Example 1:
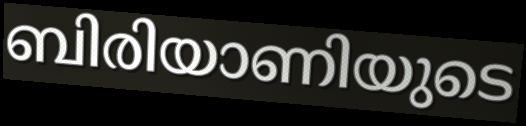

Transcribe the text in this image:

ബിരിയാണിയുടെ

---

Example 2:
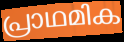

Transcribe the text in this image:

പ്രാഥമിക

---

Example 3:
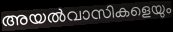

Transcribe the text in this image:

അയൽവാസികളെയും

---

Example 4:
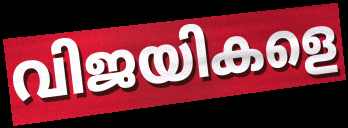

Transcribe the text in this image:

വിജയികളെ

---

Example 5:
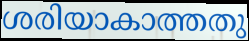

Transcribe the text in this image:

ശരിയാകാത്തതു